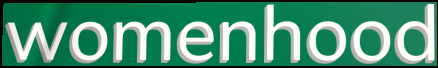
womenhood